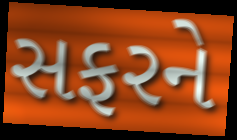
સફરને